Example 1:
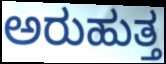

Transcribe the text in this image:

ಅರುಹುತ್ತ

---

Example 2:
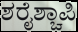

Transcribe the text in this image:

ಶರೈಶ್ಚಾಪಿ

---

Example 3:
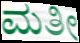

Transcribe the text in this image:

ಮತೀ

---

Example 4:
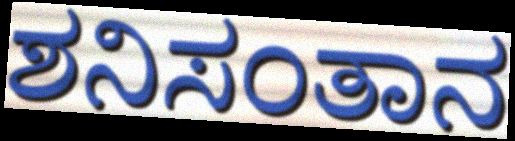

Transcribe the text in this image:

ಶನಿಸಂತಾನ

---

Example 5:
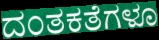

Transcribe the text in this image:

ದಂತಕತೆಗಳೂ